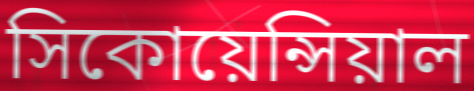
সিকোয়েন্সিয়াল